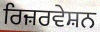
ਰਿਜ਼ਰਵੇਸ਼ਨ